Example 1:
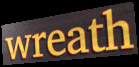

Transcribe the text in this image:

wreath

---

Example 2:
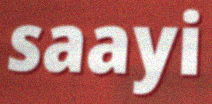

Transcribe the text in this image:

saayi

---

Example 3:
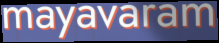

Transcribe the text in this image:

mayavaram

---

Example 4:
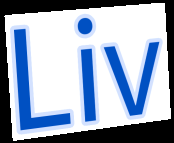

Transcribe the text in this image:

Liv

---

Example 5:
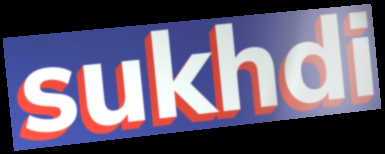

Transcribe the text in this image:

sukhdi